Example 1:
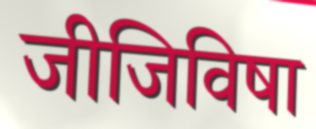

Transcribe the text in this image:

जीजिविषा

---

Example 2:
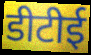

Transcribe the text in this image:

डीटीई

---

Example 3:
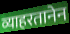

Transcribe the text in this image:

व्याहरतानेन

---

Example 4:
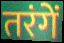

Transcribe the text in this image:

तरंगें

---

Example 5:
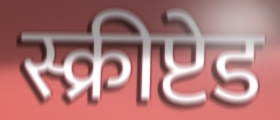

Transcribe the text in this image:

स्क्रीप्टेड